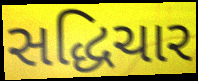
સદ્ધિચાર